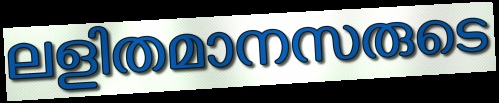
ലളിതമാനസരുടെ